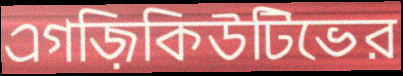
এগজ়িকিউটিভের